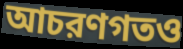
আচরণগতও